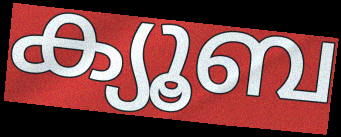
ക്യൂബ